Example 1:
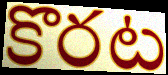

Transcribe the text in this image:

కొరట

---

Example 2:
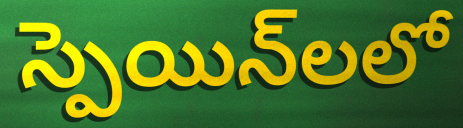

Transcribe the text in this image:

స్పెయిన్‌లలో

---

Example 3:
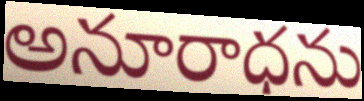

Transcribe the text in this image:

అనూరాధను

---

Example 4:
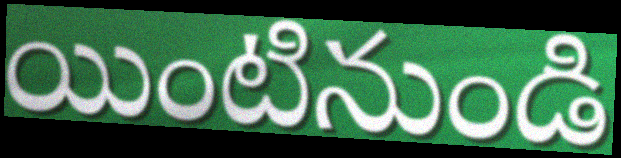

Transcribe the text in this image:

యింటినుండి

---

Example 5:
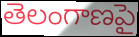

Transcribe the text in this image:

తెలంగాణపై